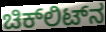
ಚಿಕ್‌ಲಿಟ್‌ನ